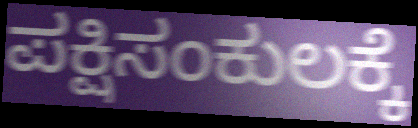
ಪಕ್ಷಿಸಂಕುಲಕ್ಕೆ